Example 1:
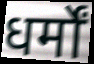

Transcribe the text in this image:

धर्मों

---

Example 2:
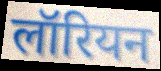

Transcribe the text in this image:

लॉरियन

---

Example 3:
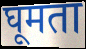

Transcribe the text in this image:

घूमता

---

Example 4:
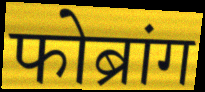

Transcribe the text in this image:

फोब्रांग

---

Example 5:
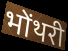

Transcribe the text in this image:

भोंथरी